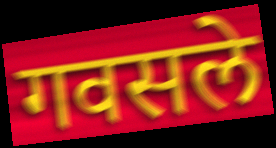
गवसले